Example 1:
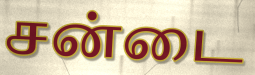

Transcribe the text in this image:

சன்டை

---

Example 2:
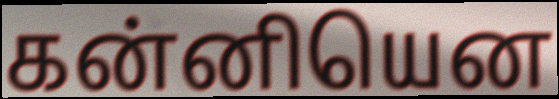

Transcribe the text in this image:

கன்னியென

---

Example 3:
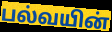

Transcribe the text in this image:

பல்வயின்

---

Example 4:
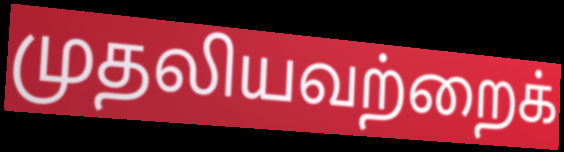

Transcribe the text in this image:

முதலியவற்றைக்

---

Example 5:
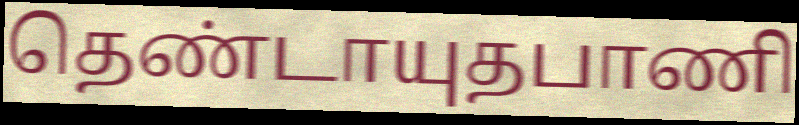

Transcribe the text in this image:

தெண்டாயுதபாணி